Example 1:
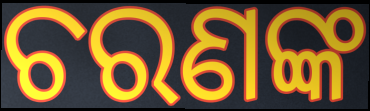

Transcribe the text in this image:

ଚରଣଙ୍କ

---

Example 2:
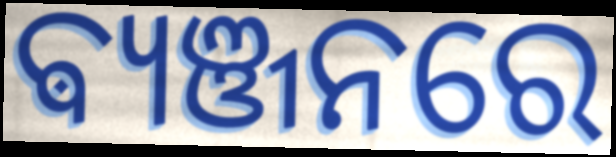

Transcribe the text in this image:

ଵ୍ୟଞ୍ଜନରେ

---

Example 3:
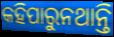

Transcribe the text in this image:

କହିପାରୁନଥାନ୍ତି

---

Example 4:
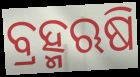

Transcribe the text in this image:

ବ୍ରହ୍ମଋଷି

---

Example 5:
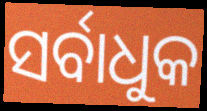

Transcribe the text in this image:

ସର୍ବାଧୁକ